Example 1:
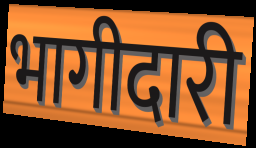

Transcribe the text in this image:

भागीदारी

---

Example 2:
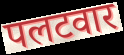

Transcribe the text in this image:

पलटवार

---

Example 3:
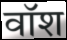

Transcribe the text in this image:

वॉश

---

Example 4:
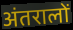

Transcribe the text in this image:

अंतरालों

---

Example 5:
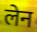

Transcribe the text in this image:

लेन